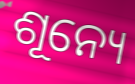
ଶୂନ୍ୟେ